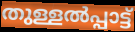
തുള്ളൽപ്പാട്ട്